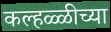
कल्हळ्ळीच्या